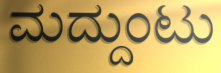
ಮದ್ದುಂಟು